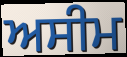
ਅਸੀਮ